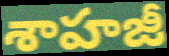
శాహజీ